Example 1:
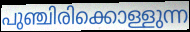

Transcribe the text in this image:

പുഞ്ചിരിക്കൊള്ളുന്ന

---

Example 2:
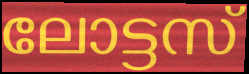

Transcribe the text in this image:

ലോട്ടസ്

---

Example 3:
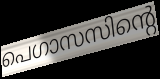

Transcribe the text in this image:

പെഗാസസിന്റെ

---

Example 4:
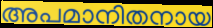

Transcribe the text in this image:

അപമാനിതനായ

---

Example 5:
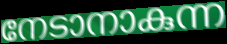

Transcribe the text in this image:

നേടാനാകുന്ന